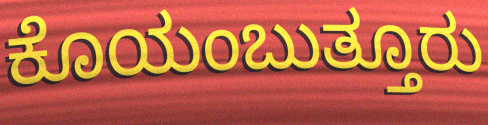
ಕೊಯಂಬುತ್ತೂರು